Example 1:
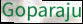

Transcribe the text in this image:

Goparaju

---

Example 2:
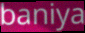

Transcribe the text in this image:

baniya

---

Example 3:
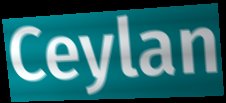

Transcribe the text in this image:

Ceylan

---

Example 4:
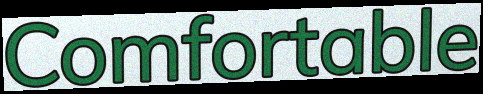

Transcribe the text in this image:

Comfortable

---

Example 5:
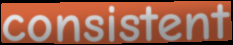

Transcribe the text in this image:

consistent